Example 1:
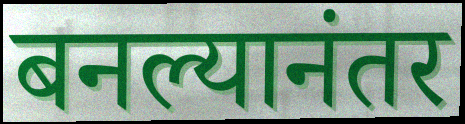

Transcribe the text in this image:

बनल्यानंतर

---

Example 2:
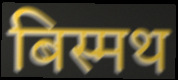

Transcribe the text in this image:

बिस्मथ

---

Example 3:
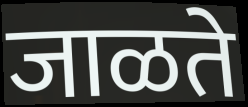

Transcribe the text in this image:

जाळते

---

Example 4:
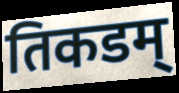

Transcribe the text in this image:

तिकडम्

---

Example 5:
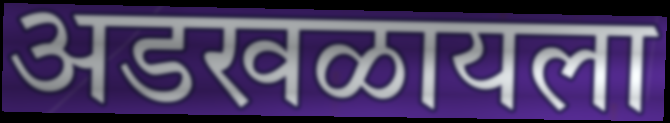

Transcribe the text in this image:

अडखळायला